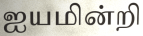
ஐயமின்றி